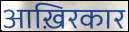
आख़िरकार